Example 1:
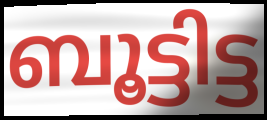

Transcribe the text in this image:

ബൂട്ടിട്ട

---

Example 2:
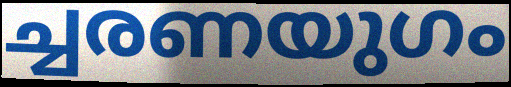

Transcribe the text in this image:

ച്ചരണയുഗം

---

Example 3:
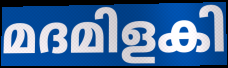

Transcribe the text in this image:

മദമിളകി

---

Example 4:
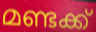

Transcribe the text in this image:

മണ്ടക്ക്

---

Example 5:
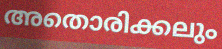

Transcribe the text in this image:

അതൊരിക്കലും